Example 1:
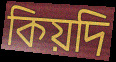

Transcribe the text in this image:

কিয়দি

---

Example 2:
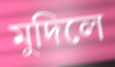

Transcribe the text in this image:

মুদিলে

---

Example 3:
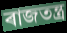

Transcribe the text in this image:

ৰাজতন্ত্ৰ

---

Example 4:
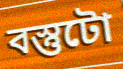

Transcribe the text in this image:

বস্তুটো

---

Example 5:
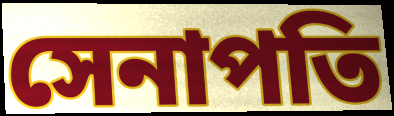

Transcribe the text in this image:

সেনাপতি